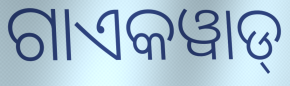
ଗାଏକୱାଡ୍